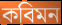
কবিমন